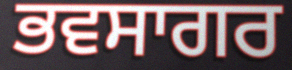
ਭਵਸਾਗਰ